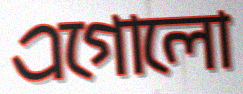
এগোলো